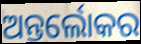
ଅନ୍ତର୍ଲୋକର